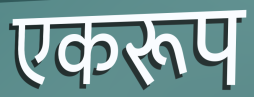
एकरूप